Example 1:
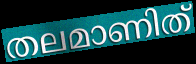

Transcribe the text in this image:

തലമാണിത്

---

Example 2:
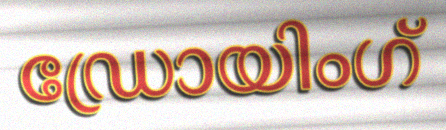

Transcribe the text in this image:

ഡ്രോയിംഗ്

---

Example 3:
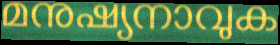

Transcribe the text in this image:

മനുഷ്യനാവുക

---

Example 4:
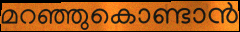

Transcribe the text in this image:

മറഞ്ഞുകൊണ്ടാൻ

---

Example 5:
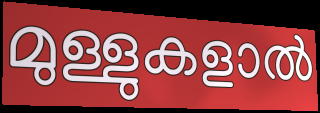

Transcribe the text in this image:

മുള്ളുകളാൽ